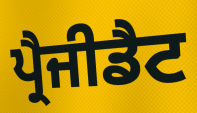
ਪ੍ਰੈਜੀਡੈਟ